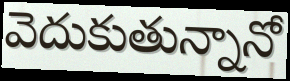
వెదుకుతున్నానో